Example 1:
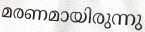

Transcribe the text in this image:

മരണമായിരുന്നു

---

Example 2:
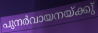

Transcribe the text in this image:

പുനർവായനയ്ക്കു്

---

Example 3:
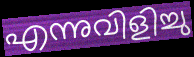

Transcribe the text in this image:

എന്നുവിളിച്ചു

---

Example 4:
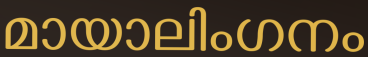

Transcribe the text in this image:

മായാലിംഗനം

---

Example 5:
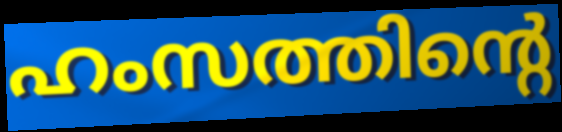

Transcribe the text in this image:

ഹംസത്തിന്റെ